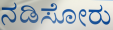
ನಡಿಸೋರು